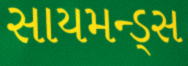
સાયમન્ડ્સ